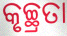
କୃଚ୍ଛ୍ରତା